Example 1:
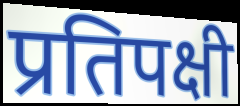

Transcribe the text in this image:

प्रतिपक्षी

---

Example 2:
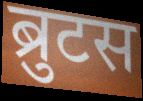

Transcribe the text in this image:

ब्रुटस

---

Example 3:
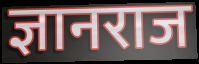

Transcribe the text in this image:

ज्ञानराज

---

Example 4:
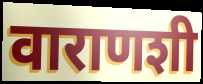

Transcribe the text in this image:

वाराणशी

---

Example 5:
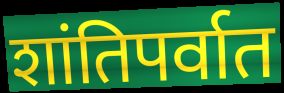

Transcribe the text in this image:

शांतिपर्वात